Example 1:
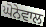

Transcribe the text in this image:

ਘੋਨੇਵਾਲ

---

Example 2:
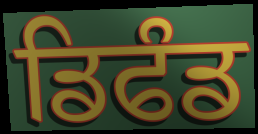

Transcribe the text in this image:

ਡਿਫੰਡ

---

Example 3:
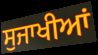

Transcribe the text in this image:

ਸੁਜਾਖੀਆਂ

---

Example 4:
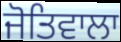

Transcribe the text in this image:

ਜੋਤਿਵਾਲਾ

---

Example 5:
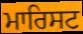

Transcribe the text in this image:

ਮਾਰਿਸਟ